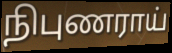
நிபுணராய்